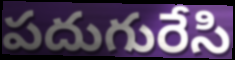
పదుగురేసి